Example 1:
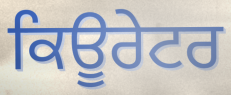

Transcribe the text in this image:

ਕਿਊਰੇਟਰ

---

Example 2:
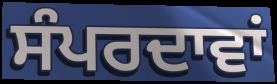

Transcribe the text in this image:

ਸੰਪਰਦਾਵਾਂ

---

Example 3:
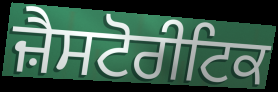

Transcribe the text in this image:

ਜ਼ੈਸਟੋਰੀਟਿਕ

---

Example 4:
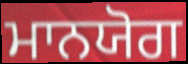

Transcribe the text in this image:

ਮਾਨਯੋਗ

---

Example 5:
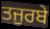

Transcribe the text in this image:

ਤਜੁਰਬੇ